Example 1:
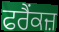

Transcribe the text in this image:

ਫਰੈਂਕਜ਼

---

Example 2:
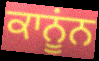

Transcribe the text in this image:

ਕਾਨੂਂਨ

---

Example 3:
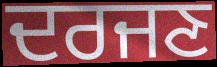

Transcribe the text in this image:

ਦਰਜਣ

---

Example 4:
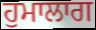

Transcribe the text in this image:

ਹੁਮਾਲਾਗ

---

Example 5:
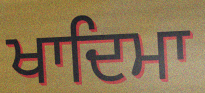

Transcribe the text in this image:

ਖਾਦਿਮਾ